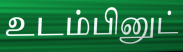
உடம்பினுட்